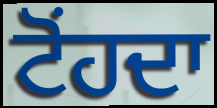
ਟੋਂਹਦਾ